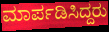
ಮಾರ್ಪಡಿಸಿದ್ದರು